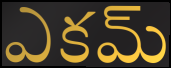
ఎకమ్